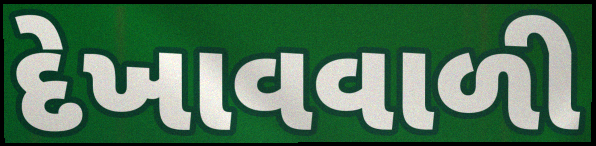
દેખાવવાળી